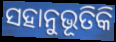
ସହାନୁଭୂତିକି